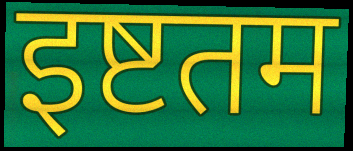
इष्टतम